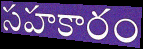
సహకారం